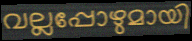
വല്ലപ്പോഴുമായി